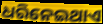
ଧରିନେଇଥାଏ